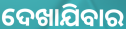
ଦେଖାଯିବାର